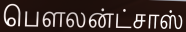
பௌலன்ட்சாஸ்